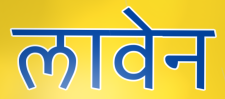
लावेन